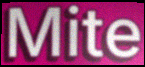
Mite